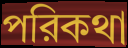
পরিকথা